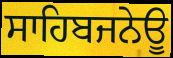
ਸਾਹਿਬਜਨੇਊ